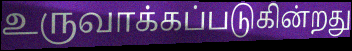
உருவாக்கப்படுகின்றது